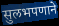
सुलभपणाने